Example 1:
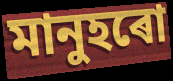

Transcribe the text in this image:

মানুহৰো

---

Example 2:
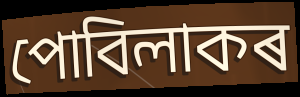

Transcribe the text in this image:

পোবিলাকৰ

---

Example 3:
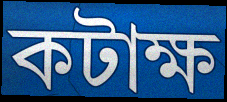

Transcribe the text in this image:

কটাক্ষ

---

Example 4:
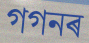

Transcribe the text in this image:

গগনৰ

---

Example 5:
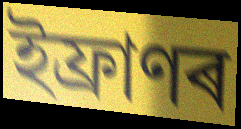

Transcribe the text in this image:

ইফ্ৰাণৰ